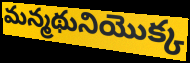
మన్మథునియొక్క